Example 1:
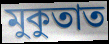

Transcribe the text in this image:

মুকুতাত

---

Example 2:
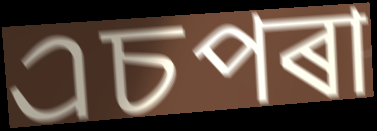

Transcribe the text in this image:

এচপৰা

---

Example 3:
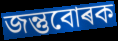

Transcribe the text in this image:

জন্তুবোৰক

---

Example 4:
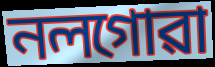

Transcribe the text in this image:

নলগোৱা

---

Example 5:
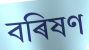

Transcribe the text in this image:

বৰিষণ